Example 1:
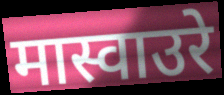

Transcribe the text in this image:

मास्वाउरे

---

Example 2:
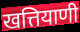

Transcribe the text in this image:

खत्तियाणी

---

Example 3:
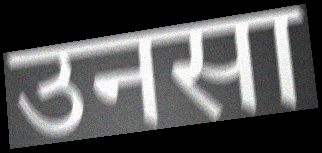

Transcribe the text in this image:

उनसा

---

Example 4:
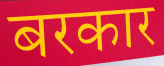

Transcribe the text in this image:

बरकार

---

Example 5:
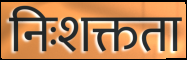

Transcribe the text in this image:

निःशक्तता